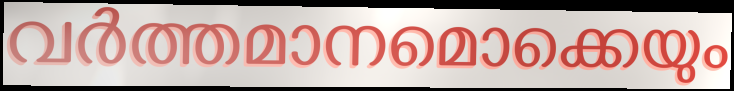
വർത്തമാനമൊക്കെയും